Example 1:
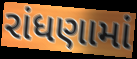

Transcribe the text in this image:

રાંધણામાં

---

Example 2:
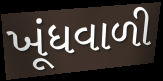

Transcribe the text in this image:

ખૂંધવાળી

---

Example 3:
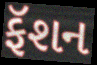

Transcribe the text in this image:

ફૅશન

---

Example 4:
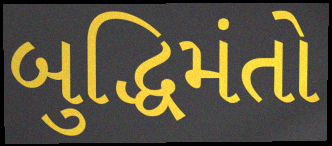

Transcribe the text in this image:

બુદ્ધિમંતો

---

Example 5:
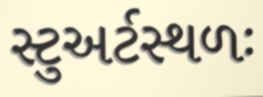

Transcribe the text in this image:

સ્ટુઅર્ટસ્થળઃ